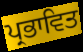
ਪ੍ਰਭਾਵਿਤ